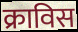
क्राविस